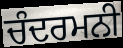
ਚੰਦਰਮਨੀ